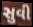
સુવી